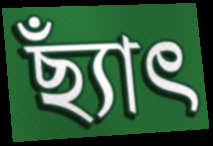
ছ্যাঁৎ